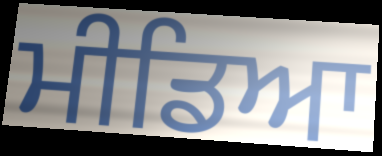
ਮੀਡਿਆ